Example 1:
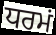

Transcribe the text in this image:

ਧਰਮਂ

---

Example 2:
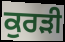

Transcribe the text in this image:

ਕੁਰੜੀ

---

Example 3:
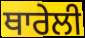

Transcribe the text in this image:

ਥਾਰੇਲੀ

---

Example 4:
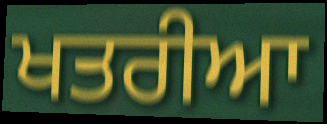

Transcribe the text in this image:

ਖਤਰੀਆ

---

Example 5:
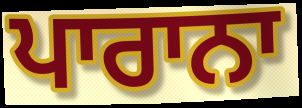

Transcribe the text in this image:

ਪਾਰਾਨਾ